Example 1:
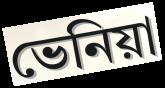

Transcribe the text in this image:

ভেনিয়া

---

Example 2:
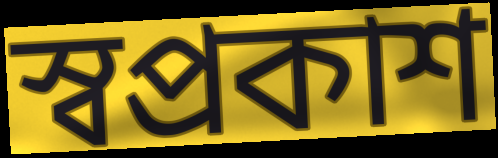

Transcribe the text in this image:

স্বপ্ৰকাশ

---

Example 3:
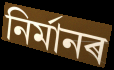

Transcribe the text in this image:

নিৰ্মানৰ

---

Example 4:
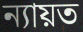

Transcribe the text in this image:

ন্যায়ত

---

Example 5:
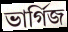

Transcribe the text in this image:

ভাৰ্গিজ